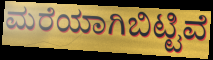
ಮರೆಯಾಗಿಬಿಟ್ಟಿವೆ